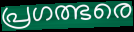
പ്രഗത്ഭരെ